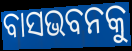
ବାସଭବନକୁ